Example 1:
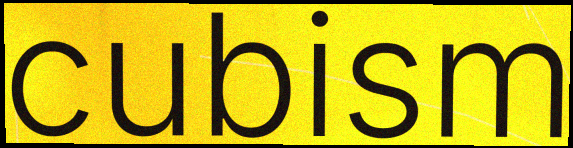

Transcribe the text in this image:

cubism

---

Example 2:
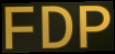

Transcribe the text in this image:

FDP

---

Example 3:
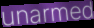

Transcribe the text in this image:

unarmed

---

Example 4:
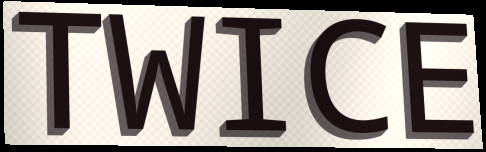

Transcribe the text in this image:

TWICE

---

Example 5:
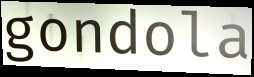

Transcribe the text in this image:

gondola